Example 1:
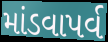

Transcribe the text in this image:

માંડવાપર્વ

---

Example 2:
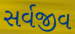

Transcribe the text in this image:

સર્વજીવ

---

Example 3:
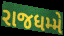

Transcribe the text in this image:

રાજધમ્મે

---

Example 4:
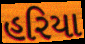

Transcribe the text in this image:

હરિયા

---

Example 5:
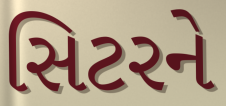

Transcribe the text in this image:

સિટરને